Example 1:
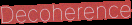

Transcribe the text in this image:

Decoherence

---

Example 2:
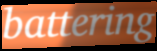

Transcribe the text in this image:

battering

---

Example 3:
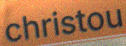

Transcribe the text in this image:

christou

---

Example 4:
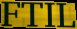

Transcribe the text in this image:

FTIL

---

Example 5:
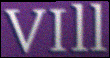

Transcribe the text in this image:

VIll